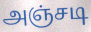
அஞ்சடி